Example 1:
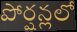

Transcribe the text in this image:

పోర్షన్లలో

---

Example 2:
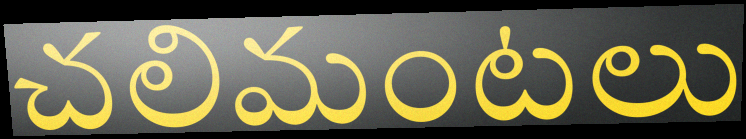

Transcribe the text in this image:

చలిమంటలు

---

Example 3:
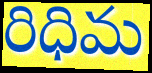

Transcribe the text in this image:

రిధిమ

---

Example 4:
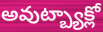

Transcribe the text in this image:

అవుట్బ్యాక్లో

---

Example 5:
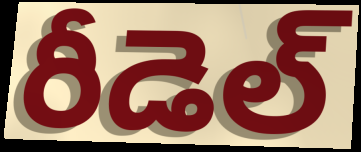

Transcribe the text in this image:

రీడెల్